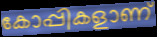
കോപ്പികളാണ്